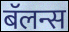
बॅलन्स